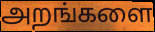
அறங்களை